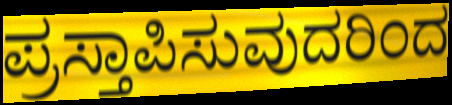
ಪ್ರಸ್ತಾಪಿಸುವುದರಿಂದ